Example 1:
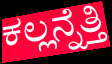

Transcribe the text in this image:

ಕಲ್ಲನ್ನೆತ್ತಿ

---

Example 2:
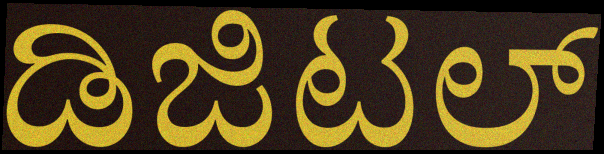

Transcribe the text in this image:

ಡಿಜಿಟಲ್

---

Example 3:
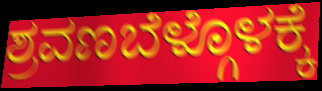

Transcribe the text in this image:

ಶ್ರವಣಬೆಳ್ಗೊಳಕ್ಕೆ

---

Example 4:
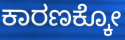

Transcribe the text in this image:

ಕಾರಣಕ್ಕೋ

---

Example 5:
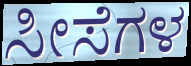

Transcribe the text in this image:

ಸೀಸೆಗಳ